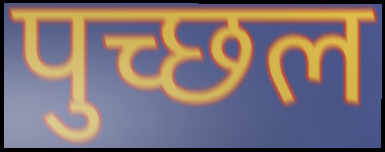
पुच्छल